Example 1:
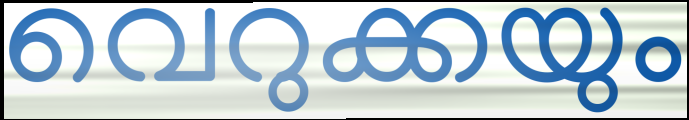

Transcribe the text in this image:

വെറുക്കയും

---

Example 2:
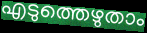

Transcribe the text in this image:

എടുത്തെഴുതാം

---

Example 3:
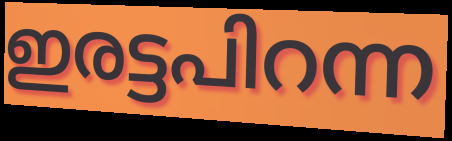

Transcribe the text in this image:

ഇരട്ടപിറന്ന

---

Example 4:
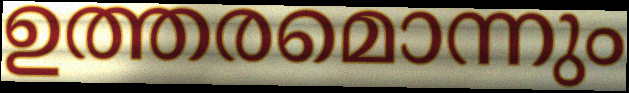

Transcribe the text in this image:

ഉത്തരമൊന്നും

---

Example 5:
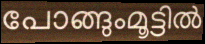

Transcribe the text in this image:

പോങ്ങുംമൂട്ടിൽ